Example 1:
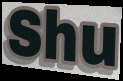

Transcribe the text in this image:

Shu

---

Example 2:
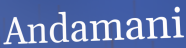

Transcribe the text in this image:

Andamani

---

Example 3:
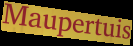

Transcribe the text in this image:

Maupertuis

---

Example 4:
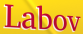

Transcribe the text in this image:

Labov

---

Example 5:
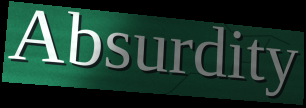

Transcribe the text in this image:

Absurdity